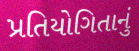
પ્રતિયોગિતાનું